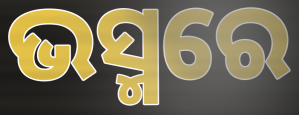
ଭସ୍ମରେ